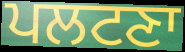
ਪਲਟਣਾ